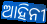
ଆହିନୀ